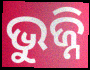
ଭୁଜ୍ନି